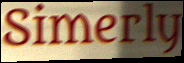
Simerly